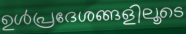
ഉൾപ്രദേശങ്ങളിലൂടെ